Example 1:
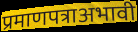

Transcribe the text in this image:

प्रमाणपत्राअभावी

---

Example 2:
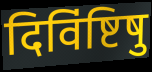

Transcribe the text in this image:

दिवि॑ष्टिषु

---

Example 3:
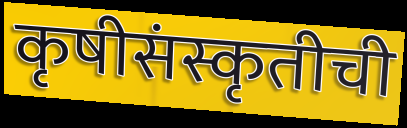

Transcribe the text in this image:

कृषीसंस्कृतीची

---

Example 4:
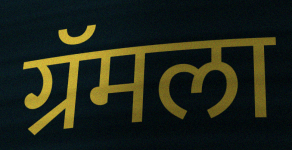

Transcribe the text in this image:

ग्रॅमला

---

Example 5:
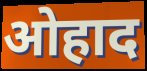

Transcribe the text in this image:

ओहाद